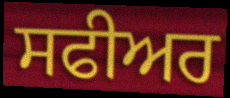
ਸਫੀਅਰ